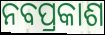
ନବପ୍ରକାଶ